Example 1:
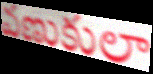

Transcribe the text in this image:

వణుకులా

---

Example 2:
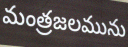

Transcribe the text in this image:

మంత్రజలమును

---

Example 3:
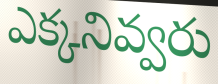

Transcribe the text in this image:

ఎక్కనివ్వరు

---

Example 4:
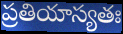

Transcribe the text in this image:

ప్రతియాస్యతః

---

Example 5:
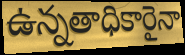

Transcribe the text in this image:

ఉన్నతాధికారైనా